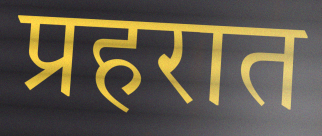
प्रहरात